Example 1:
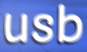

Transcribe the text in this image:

usb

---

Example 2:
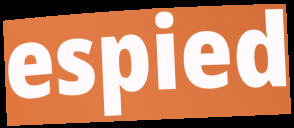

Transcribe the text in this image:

espied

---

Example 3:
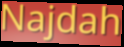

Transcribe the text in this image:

Najdah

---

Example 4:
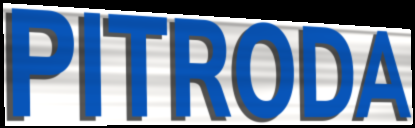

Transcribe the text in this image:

PITRODA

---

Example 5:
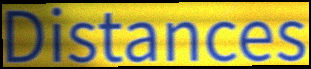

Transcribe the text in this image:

Distances